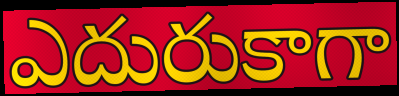
ఎదురుకాగా